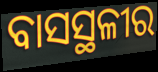
ବାସସ୍ଥଳୀର